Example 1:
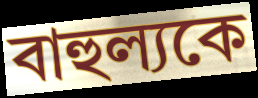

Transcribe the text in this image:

বাহুল্যকে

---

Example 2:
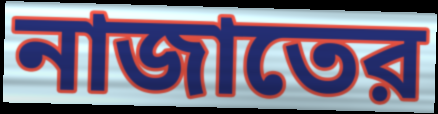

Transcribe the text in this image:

নাজাতের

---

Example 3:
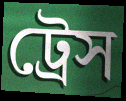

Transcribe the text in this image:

ট্রেস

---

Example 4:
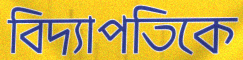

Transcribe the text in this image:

বিদ্যাপতিকে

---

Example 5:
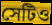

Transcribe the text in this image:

সেটিও